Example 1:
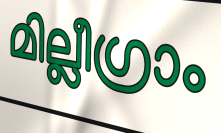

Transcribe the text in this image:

മില്ലീഗ്രാം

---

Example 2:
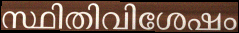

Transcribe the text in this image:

സ്ഥിതിവിശേഷം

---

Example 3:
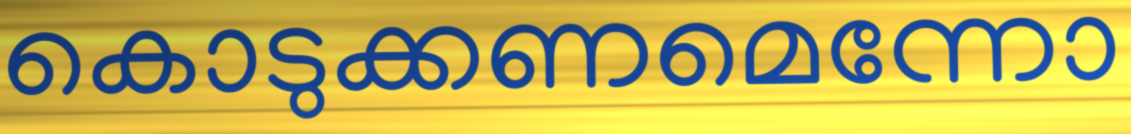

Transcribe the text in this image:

കൊടുക്കണമെന്നോ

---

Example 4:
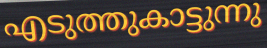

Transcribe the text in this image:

എടുത്തുകാട്ടുന്നു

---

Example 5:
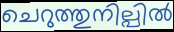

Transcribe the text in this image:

ചെറുത്തുനില്പിൽ